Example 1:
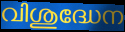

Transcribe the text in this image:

വിശുദ്ധേന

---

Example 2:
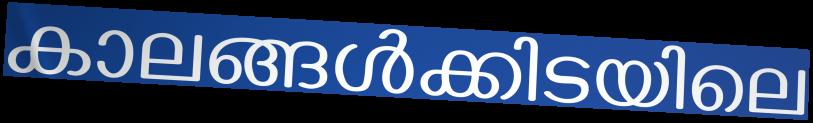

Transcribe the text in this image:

കാലങ്ങൾക്കിടയിലെ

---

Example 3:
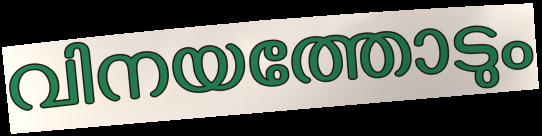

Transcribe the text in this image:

വിനയത്തോടും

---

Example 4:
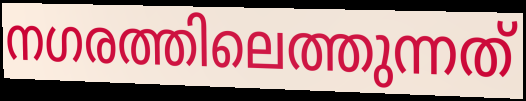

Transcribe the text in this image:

നഗരത്തിലെത്തുന്നത്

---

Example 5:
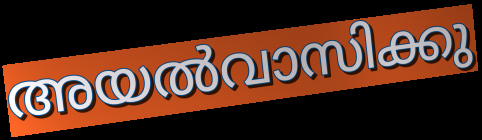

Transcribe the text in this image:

അയൽവാസിക്കു